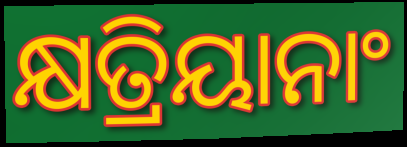
କ୍ଷତ୍ରିୟାନାଂ